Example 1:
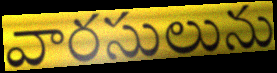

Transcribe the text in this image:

వారసులును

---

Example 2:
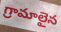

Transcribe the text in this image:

గ్రామాలైన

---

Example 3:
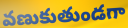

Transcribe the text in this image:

వణుకుతుండగా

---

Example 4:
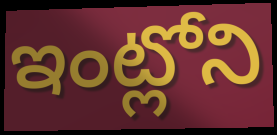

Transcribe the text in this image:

ఇంట్లోని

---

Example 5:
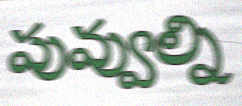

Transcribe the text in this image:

పువ్వుల్ని